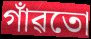
গাঁৱতো